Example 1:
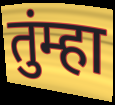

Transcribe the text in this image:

तुंम्हा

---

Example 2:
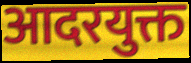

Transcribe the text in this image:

आदरयुक्त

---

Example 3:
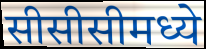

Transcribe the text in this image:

सीसीसीमध्ये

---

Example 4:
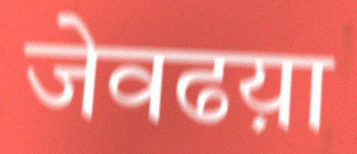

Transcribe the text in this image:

जेवढय़ा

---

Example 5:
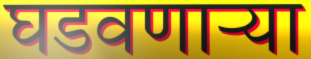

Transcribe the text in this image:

घडवणाऱ्या